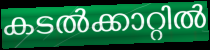
കടൽക്കാറ്റിൽ